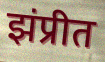
झंप्रीत